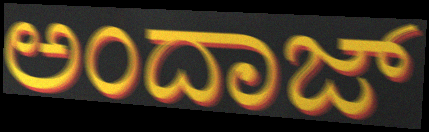
ಅಂದಾಜ್